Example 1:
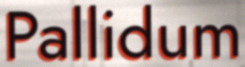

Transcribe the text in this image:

Pallidum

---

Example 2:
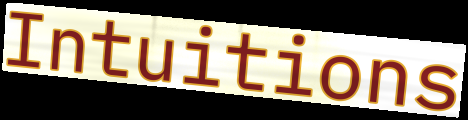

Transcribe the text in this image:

Intuitions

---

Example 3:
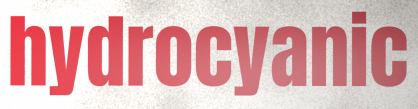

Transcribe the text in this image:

hydrocyanic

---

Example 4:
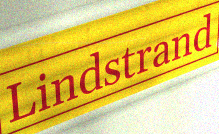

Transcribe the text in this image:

Lindstrand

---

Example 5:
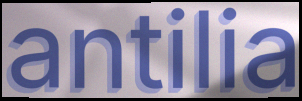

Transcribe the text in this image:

antilia